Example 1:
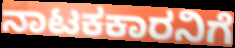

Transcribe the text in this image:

ನಾಟಕಕಾರನಿಗೆ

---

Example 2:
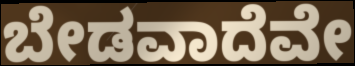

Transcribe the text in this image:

ಬೇಡವಾದೆವೇ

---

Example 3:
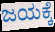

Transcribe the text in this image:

ಜಯಕ್ಕೆ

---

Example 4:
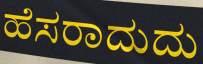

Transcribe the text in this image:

ಹೆಸರಾದುದು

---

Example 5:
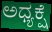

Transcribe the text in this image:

ಅಧ್ಯಕ್ಷೆ